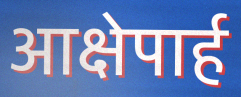
आक्षेपार्ह